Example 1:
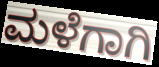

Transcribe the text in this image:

ಮಳೆಗಾಗಿ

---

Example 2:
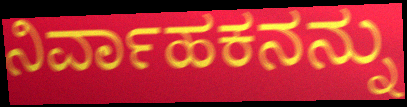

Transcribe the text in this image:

ನಿರ್ವಾಹಕನನ್ನು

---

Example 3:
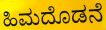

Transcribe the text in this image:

ಹಿಮದೊಡನೆ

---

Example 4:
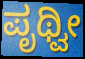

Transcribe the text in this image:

ಪೃಥ್ವೀ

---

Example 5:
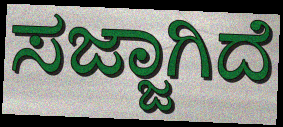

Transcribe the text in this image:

ಸಜ್ಜಾಗಿದೆ